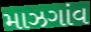
માઝગાંવ